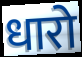
धारो